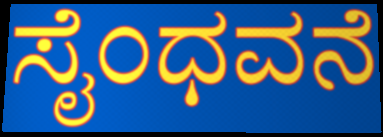
ಸೈಂಧವನೆ